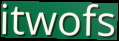
itwofs